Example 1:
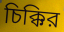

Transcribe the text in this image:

চিক্কির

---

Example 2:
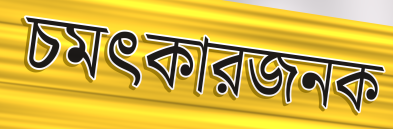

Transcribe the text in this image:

চমৎকারজনক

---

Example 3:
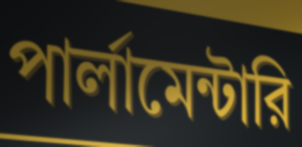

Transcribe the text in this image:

পার্লামেন্টারি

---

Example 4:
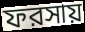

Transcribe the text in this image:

ফরসায়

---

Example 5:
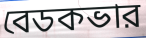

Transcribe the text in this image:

বেডকভার